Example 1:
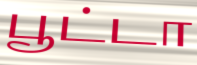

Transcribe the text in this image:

பூட்டா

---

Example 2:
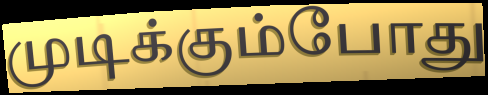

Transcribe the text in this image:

முடிக்கும்போது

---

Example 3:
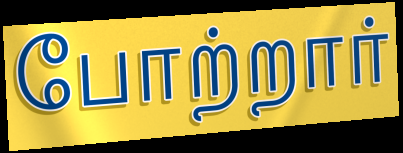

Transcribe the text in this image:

போற்றார்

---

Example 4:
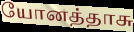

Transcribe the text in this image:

யோனத்தாசு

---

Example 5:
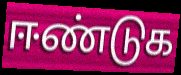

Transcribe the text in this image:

ஈண்டுக